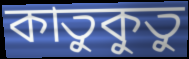
কাতুকুতু